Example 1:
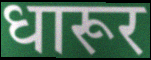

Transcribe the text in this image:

धारूर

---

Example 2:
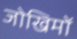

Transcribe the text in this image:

जोखिमों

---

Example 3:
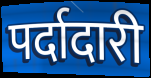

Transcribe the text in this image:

पर्दादारी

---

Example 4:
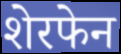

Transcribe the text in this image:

शेरफेन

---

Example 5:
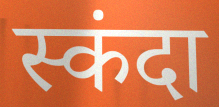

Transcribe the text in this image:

स्कंदा